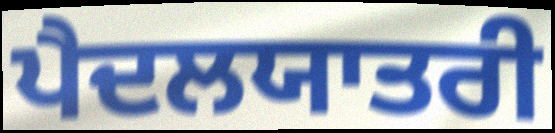
ਪੈਦਲਯਾਤਰੀ